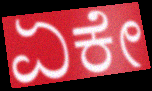
ಏಕೇ